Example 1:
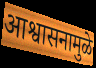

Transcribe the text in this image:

आश्वासनामुळे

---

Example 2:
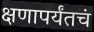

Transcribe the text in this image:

क्षणापर्यंतचं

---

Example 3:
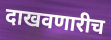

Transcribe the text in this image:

दाखवणारीच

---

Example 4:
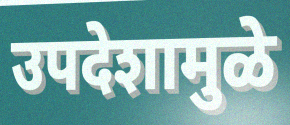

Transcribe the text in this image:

उपदेशामुळे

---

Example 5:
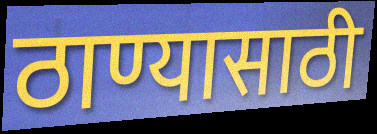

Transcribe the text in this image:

ठाण्यासाठी